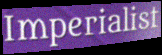
Imperialist